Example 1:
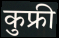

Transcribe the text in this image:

कुफ्री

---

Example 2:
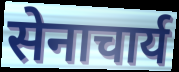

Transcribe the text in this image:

सेनाचार्य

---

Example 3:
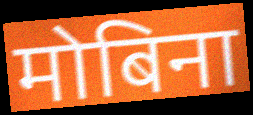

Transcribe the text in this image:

मोबिना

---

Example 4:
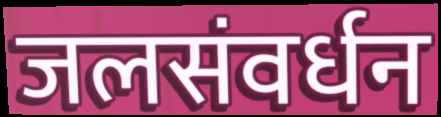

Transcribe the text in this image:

जलसंवर्धन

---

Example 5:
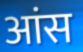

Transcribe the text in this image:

आंस